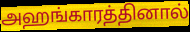
அஹங்காரத்தினால்